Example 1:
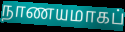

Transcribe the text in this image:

நாணயமாகப்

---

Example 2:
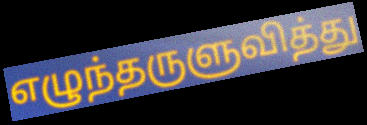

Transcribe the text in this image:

எழுந்தருளுவித்து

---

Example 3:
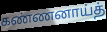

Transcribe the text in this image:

கண்ணனாய்த்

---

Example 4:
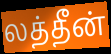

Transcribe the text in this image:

லத்தீன்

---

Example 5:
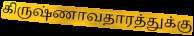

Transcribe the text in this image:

கிருஷ்ணாவதாரத்துக்கு